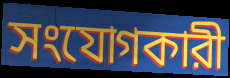
সংযোগকারী